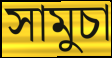
সামুচা